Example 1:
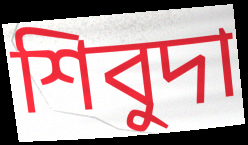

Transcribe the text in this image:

শিবুদা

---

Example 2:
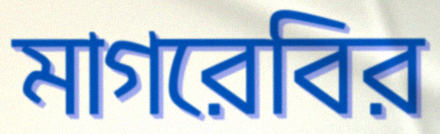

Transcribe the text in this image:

মাগরেবির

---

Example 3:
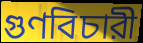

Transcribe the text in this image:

গুণবিচারী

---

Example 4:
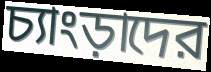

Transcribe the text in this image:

চ্যাংড়াদের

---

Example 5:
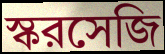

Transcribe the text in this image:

স্করসেজি